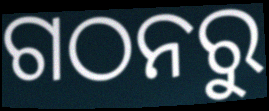
ଗଠନରୁ